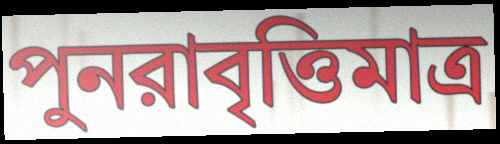
পুনরাবৃত্তিমাত্র